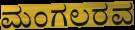
ಮಂಗಲರವ